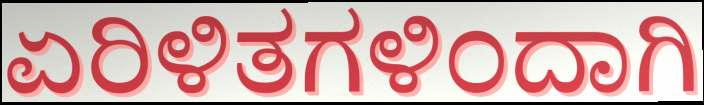
ಏರಿಳಿತಗಳಿಂದಾಗಿ